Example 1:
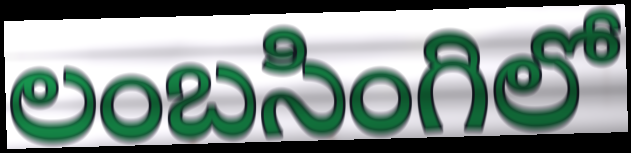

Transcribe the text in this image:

లంబసింగిలో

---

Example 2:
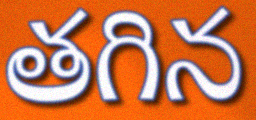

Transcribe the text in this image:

తగిన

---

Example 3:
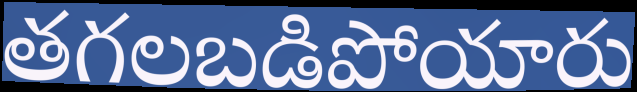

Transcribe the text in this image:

తగలబడిపోయారు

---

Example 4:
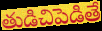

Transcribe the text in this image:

తుడిచిపెడితే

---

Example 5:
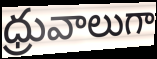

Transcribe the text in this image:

ధ్రువాలుగా